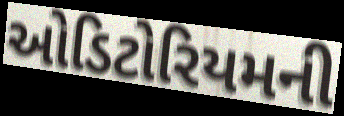
ઓડિટોરિયમની